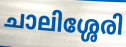
ചാലിശ്ശേരി